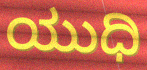
ಯುಧಿ